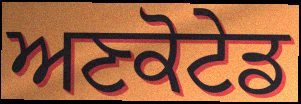
ਅਣਕੋਟੇਡ